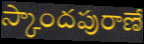
స్కాందపురాణే